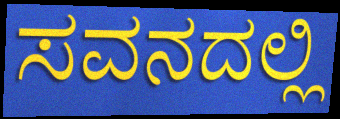
ಸವನದಲ್ಲಿ